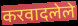
करवादलेले